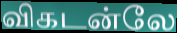
விகடன்லே